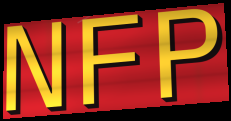
NFP